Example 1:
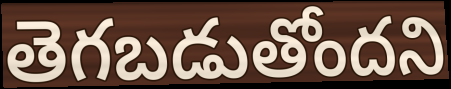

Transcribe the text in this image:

తెగబడుతోందని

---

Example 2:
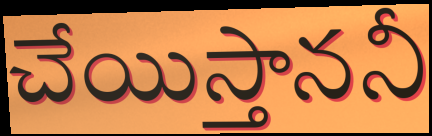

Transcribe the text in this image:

చేయిస్తాననీ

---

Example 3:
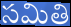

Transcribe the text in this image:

సమితి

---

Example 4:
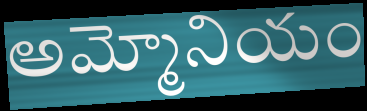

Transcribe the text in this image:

అమ్మోనియం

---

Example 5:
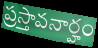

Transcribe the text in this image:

ప్రస్తావనార్హం